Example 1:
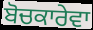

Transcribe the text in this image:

ਬੋਚਕਾਰੇਵਾ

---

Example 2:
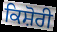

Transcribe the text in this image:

ਕਿਸ਼ੋਰੀ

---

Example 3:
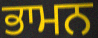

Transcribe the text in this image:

ਭਾਮਨ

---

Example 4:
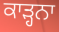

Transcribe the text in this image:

ਕਾੜ੍ਹਨਾ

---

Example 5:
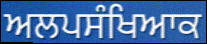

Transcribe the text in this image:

ਅਲਪਸੰਖਿਆਕ